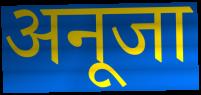
अनूजा